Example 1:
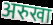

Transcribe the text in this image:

अरुखा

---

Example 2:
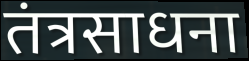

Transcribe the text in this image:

तंत्रसाधना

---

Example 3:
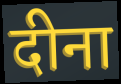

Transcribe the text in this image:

दीना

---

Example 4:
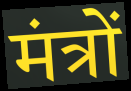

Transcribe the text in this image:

मंत्रों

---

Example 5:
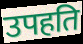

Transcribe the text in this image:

उपहति